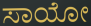
ಸಾಯೋ